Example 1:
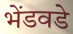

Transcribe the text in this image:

भेंडवडे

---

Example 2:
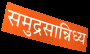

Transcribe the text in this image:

समुद्रसान्निध्य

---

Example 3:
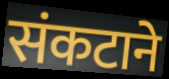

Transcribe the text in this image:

संकटाने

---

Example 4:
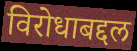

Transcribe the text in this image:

विरोधाबद्दल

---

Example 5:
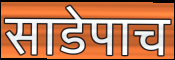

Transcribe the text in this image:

साडेपाच